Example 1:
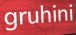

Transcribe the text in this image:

gruhini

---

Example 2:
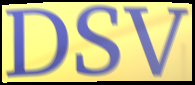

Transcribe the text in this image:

DSV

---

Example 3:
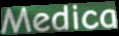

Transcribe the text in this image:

Medica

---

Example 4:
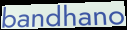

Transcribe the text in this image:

bandhano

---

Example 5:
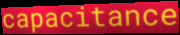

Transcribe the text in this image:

capacitance